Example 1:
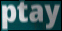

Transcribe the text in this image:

ptay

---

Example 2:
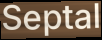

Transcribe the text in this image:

Septal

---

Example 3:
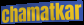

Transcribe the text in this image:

chamatkar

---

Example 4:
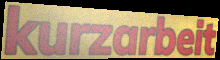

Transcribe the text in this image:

kurzarbeit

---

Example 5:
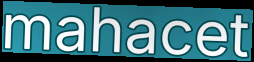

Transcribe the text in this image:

mahacet